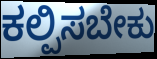
ಕಲ್ಪಿಸಬೇಕು